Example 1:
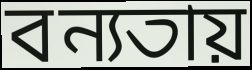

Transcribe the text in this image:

বন্যতায়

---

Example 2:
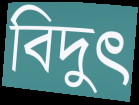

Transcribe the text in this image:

বিদুৎ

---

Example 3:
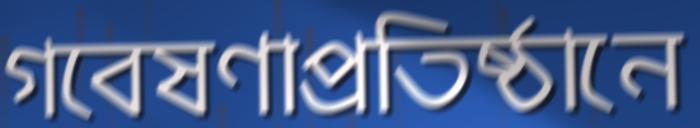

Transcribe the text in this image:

গবেষণাপ্রতিষ্ঠানে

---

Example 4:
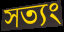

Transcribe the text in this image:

সত্যং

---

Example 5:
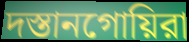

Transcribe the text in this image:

দস্তানগোয়িরা